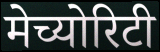
मेच्योरिटी